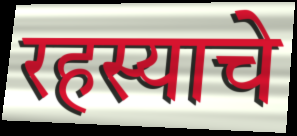
रहस्याचे